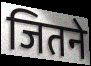
जितने